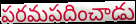
పరమపదించాడు